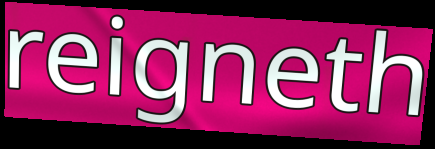
reigneth